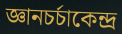
জ্ঞানচর্চাকেন্দ্র